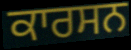
ਕਾਰਸਨ